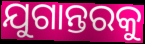
ଯୁଗାନ୍ତରକୁ